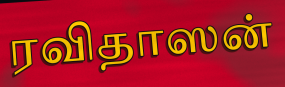
ரவிதாஸன்